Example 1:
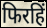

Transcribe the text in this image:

फिरहिं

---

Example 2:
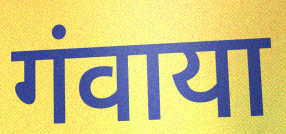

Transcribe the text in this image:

गंवाया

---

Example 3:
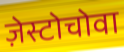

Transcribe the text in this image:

ज़ेस्टोचोवा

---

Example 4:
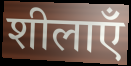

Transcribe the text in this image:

शीलाएँ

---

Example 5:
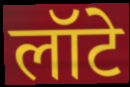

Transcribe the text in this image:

लॉटे